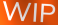
WIP